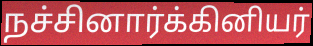
நச்சினார்க்கினியர்